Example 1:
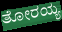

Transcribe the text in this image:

ತೋರಯ್ಯ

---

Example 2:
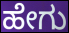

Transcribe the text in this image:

ಹೇಗು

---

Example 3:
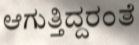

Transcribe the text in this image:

ಆಗುತ್ತಿದ್ದರಂತೆ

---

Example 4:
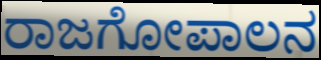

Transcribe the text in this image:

ರಾಜಗೋಪಾಲನ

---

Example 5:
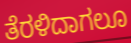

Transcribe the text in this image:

ತೆರಳಿದಾಗಲೂ